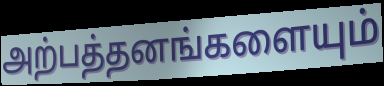
அற்பத்தனங்களையும்